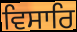
ਵਿਸਾਰਿ